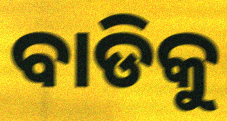
ବାଡିକୁ